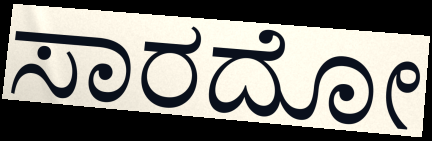
ಸಾರದೋ